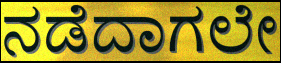
ನಡೆದಾಗಲೇ